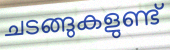
ചടങ്ങുകളുണ്ട്